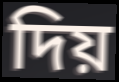
দিয়